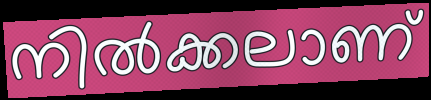
നിൽക്കലാണ്